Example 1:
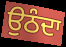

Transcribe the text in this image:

ਉਠੰਦਾ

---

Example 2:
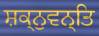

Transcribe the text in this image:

ਸ਼ਕ੍ਨੁਵਨ੍ਤਿ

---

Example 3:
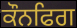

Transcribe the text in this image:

ਕੌਨਫਿਗ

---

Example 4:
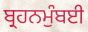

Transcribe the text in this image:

ਬ੍ਰਹਨਮੁੰਬਈ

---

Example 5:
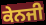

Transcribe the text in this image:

ਕੇਨਜੀ